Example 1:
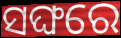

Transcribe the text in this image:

ସଙ୍ଘରେ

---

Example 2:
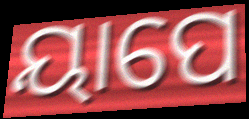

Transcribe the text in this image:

ୟାପେ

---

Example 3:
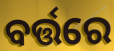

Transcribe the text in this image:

ବର୍ତ୍ତରେ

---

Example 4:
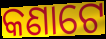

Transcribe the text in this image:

କଣାଟେ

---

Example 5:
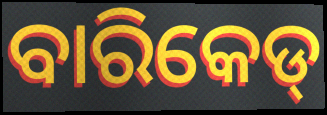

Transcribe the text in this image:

ବାରିକେଡ୍